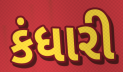
કંધારી